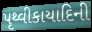
પૃથ્વીકાયાદિની